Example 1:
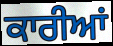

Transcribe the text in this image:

ਕਾਰੀਆਂ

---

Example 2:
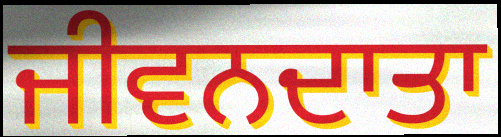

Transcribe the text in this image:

ਜੀਵਨਦਾਤਾ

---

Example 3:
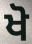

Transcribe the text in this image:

ਖੋ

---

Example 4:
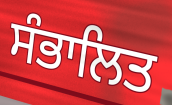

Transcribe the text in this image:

ਸੰਭਾਲਿਤ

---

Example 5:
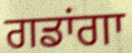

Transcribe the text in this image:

ਗਡਾਂਗਾ